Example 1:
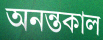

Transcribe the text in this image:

অনন্তকাল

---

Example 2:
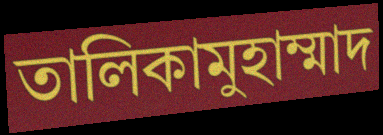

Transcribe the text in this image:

তালিকামুহাম্মাদ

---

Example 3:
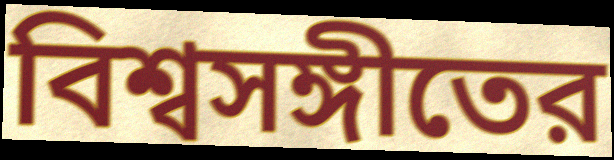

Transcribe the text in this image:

বিশ্বসঙ্গীতের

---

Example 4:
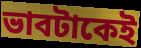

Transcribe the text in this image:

ভাবটাকেই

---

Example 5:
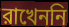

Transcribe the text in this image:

রাখেননি